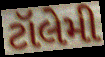
ટૉલેમી